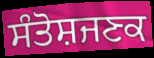
ਸੰਤੋਸ਼ਜਣਕ